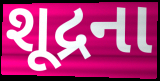
શૂદ્રના